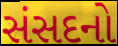
સંસદનો